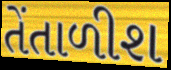
તેંતાળીશ